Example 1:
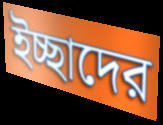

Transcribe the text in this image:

ইচ্ছাদের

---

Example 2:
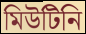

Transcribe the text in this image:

মিউটিনি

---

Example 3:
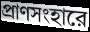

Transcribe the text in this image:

প্রাণসংহারে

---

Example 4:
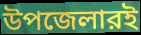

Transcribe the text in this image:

উপজেলারই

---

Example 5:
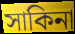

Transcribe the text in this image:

সাকিনা